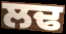
ਲਢ